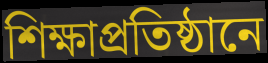
শিক্ষাপ্রতিষ্ঠানে